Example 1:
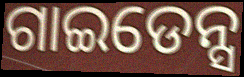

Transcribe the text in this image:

ଗାଇଡେନ୍ସ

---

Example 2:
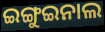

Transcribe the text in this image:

ଇଙ୍ଗୁଇନାଲ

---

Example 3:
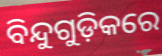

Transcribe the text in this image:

ବିନ୍ଦୁଗୁଡ଼ିକରେ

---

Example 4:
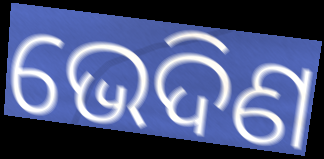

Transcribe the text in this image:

ଭେଦିଣ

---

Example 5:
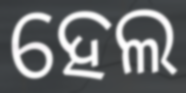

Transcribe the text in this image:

ହେଲ